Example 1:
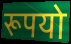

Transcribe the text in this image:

रूपयो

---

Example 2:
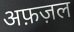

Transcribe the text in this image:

अफ़ज़ल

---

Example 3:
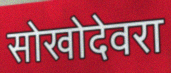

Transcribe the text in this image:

सोखोदेवरा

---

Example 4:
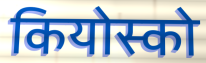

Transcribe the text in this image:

कियोस्को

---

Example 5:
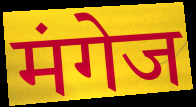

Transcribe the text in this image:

मंगेज